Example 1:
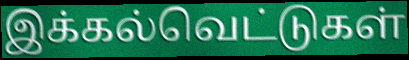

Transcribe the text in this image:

இக்கல்வெட்டுகள்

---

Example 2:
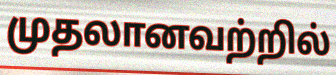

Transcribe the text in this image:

முதலானவற்றில்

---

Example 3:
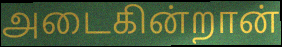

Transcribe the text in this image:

அடைகின்றான்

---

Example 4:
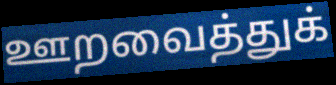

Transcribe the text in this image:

ஊறவைத்துக்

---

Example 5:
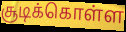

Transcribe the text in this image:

சூடிக்கொள்ள